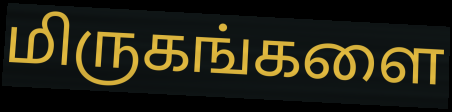
மிருகங்களை